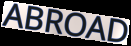
ABROAD